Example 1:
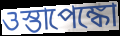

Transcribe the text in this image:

ওস্তাপেঙ্কো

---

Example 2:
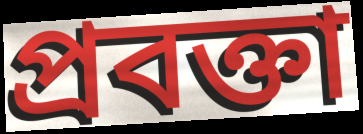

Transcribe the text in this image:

প্রবক্তা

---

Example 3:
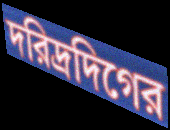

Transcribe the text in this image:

দরিদ্রদিগের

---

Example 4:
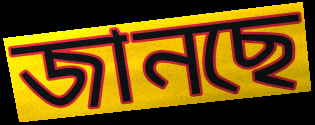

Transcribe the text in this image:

জানছে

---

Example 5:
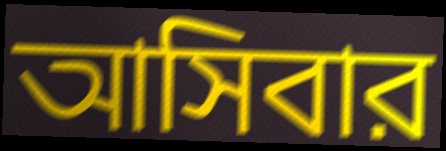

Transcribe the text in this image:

আসিবার